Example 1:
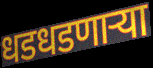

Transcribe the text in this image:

धडधडणाऱ्या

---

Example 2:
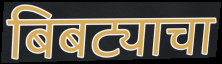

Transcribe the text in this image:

बिबट्याचा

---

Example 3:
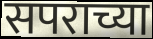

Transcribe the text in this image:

सपराच्या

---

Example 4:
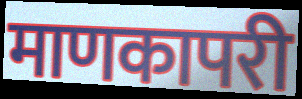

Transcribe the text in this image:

माणकापरी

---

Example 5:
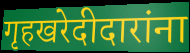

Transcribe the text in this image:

गृहखरेदीदारांना